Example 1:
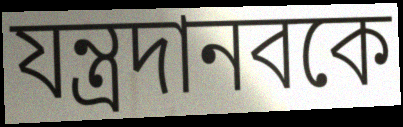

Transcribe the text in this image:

যন্ত্রদানবকে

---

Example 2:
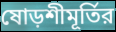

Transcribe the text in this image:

ষোড়শীমূর্তির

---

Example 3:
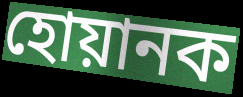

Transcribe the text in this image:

হোয়ানক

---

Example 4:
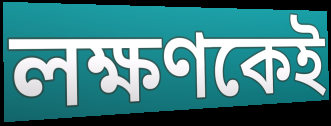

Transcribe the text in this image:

লক্ষণকেই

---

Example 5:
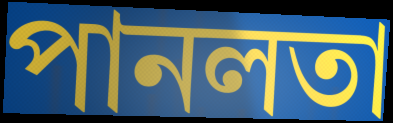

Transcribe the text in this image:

পানলতা